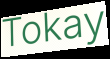
Tokay